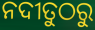
ନଦୀତୁଠରୁ